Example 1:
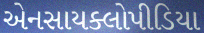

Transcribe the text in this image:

એનસાયક્લોપીડિયા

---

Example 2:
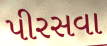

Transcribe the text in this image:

પીરસવા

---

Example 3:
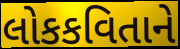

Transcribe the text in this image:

લોકકવિતાને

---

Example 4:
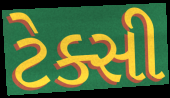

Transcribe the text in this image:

ટેક્સી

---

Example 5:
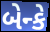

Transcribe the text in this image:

બેન્કે